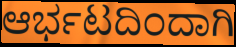
ಆರ್ಭಟದಿಂದಾಗಿ